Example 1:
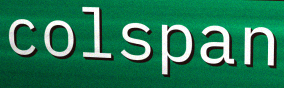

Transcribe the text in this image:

colspan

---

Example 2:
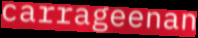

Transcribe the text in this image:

carrageenan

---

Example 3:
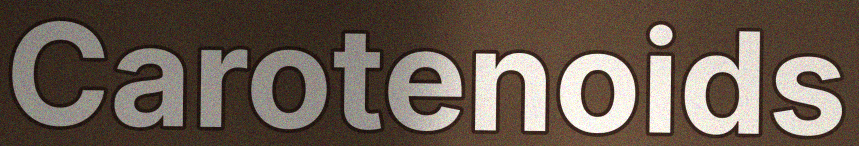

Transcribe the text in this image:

Carotenoids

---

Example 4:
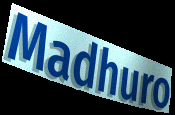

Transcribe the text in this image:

Madhuro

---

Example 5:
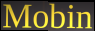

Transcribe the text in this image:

Mobin